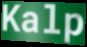
Kalp